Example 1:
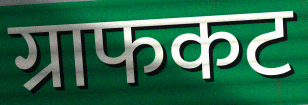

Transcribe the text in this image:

ग्राफकट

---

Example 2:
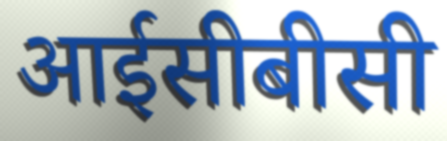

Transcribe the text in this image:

आईसीबीसी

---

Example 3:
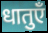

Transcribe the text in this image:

धातुएँ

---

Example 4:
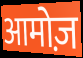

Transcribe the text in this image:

आमोज़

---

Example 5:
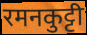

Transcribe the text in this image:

रमनकुट्टी